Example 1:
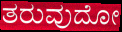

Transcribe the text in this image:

ತರುವುದೋ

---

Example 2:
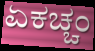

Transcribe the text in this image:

ಏಕಚ್ಚಂ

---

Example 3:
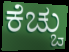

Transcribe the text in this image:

ಕೆಚ್ಚು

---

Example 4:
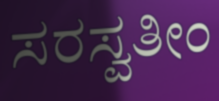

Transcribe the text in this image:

ಸರಸ್ವತೀಂ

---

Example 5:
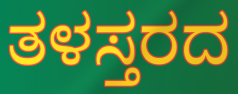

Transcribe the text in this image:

ತಳಸ್ತರದ